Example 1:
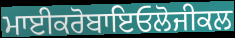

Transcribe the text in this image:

ਮਾਈਕਰੋਬਾਇਓਲੋਜੀਕਲ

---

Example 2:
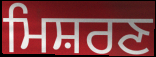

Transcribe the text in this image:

ਮਿਸ਼ਰਣ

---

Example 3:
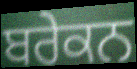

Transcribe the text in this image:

ਬਰੇਕਨ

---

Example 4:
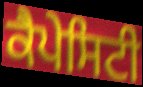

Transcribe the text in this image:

ਕੈਪੇਸਿਟੀ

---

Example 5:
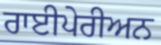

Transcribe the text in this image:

ਰਾਈਪੇਰੀਅਨ